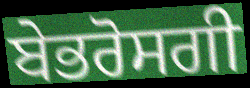
ਬੇਭਰੋਸਗੀ